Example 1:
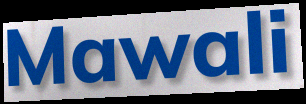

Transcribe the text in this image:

Mawali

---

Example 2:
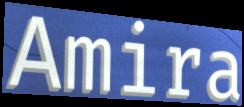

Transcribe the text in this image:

Amira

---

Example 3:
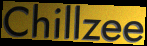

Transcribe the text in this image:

Chillzee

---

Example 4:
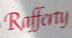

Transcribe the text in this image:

Rafferty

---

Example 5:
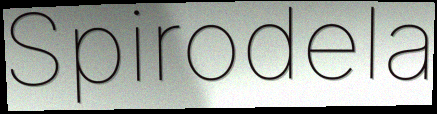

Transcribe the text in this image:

Spirodela